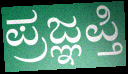
ಪ್ರಜ್ಞಪ್ತಿ